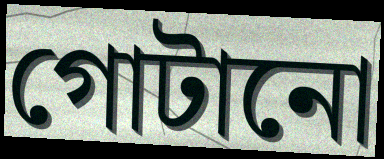
গোটানো